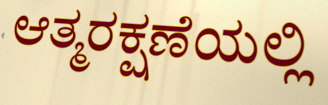
ಆತ್ಮರಕ್ಷಣೆಯಲ್ಲಿ